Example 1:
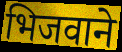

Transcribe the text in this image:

भिजवाने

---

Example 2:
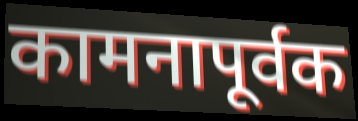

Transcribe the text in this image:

कामनापूर्वक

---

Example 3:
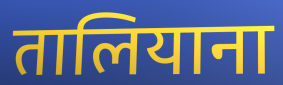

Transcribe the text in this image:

तालियाना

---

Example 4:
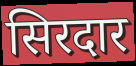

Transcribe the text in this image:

सिरदार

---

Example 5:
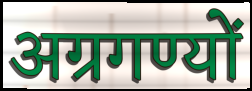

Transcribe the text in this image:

अग्रगण्यों